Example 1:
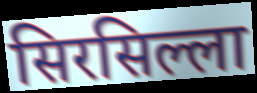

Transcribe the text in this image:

सिरसिल्ला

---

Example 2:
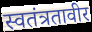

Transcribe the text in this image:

स्वतंत्रतावीर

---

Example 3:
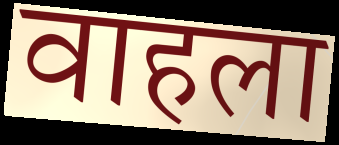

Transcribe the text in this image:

वाहला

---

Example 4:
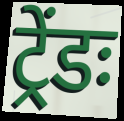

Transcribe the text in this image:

ट्रेंडः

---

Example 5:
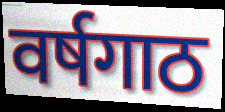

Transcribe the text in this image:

वर्षगाठ